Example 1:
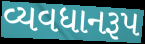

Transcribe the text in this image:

વ્યવધાનરૂપ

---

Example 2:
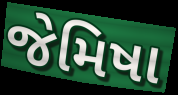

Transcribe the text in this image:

જેમિષા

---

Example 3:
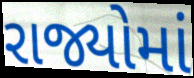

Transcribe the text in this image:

રાજ્યોમાં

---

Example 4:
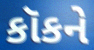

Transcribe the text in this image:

કૉકને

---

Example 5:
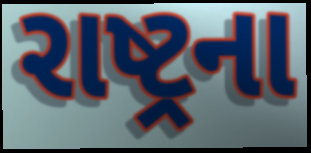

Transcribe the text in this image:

રાષ્ટ્રના